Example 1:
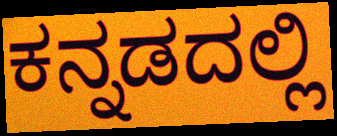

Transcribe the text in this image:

ಕನ್ನಡದಲ್ಲಿ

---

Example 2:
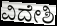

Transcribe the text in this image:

ವಿದೇಶಿ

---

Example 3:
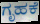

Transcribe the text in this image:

ಗೃಹಕೆ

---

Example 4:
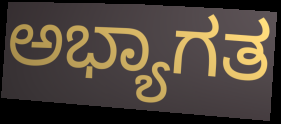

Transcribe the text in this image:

ಅಭ್ಯಾಗತ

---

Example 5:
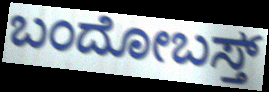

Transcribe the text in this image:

ಬಂದೋಬಸ್ತ್